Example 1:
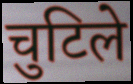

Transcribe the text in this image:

चुटिले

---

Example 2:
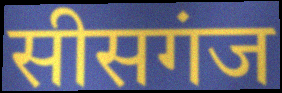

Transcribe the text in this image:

सीसगंज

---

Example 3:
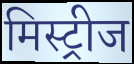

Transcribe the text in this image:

मिस्ट्रीज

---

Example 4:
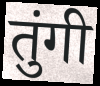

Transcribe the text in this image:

तुंगी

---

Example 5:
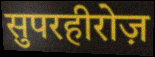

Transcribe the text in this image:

सुपरहीरोज़